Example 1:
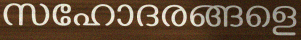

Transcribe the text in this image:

സഹോദരങ്ങളെ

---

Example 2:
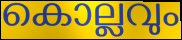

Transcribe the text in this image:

കൊല്ലവും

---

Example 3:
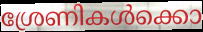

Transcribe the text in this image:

ശ്രേണികൾക്കൊ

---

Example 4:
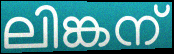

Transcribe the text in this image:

ലിങ്കന്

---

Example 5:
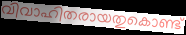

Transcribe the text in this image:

വിവാഹിതരായതുകൊണ്ട്